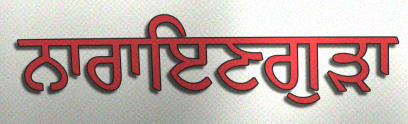
ਨਾਰਾਇਣਗੁੜਾ